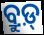
ବ୍ରୁଡ଼୍